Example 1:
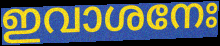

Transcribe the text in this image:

ഇവാശനേഃ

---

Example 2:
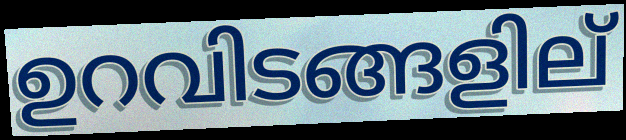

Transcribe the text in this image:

ഉറവിടങ്ങളില്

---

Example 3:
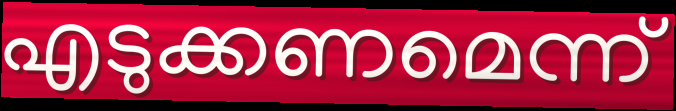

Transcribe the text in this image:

എടുക്കണമെന്ന്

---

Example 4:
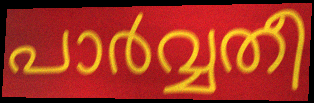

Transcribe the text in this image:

പാർവ്വതീ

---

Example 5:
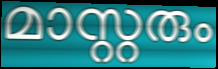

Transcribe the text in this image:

മാസ്റ്റരും